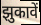
झुकावें